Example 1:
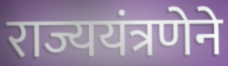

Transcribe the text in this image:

राज्ययंत्रणेने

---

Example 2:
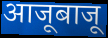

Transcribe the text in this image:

आजूबाजू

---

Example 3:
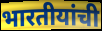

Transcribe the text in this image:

भारतीयांची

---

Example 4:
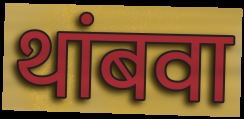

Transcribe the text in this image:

थांबवा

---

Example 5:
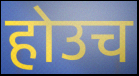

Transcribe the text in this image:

होउच